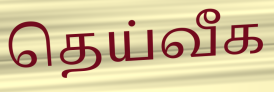
தெய்வீக